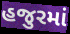
હજુરમાં